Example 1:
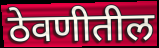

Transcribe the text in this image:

ठेवणीतील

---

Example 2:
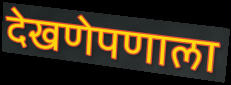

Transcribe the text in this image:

देखणेपणाला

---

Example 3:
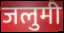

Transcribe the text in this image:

जलुमी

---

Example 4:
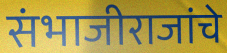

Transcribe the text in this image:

संभाजीराजांचे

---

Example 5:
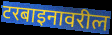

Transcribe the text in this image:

टरबाइनावरील